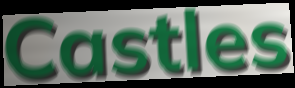
Castles